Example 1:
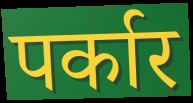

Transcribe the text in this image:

पर्कार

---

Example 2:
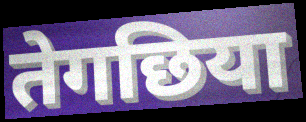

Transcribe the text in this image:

तेगछिया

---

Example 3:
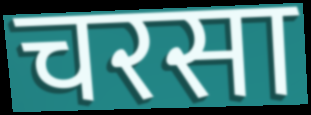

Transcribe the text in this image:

चरसा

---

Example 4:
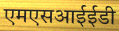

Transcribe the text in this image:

एमएसआईईडी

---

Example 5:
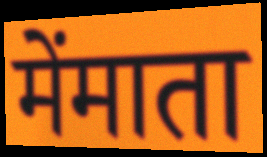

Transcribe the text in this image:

मेंमाता